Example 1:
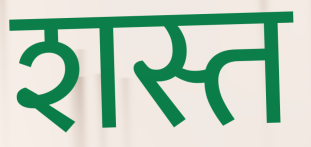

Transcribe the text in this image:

शस्त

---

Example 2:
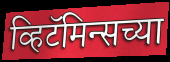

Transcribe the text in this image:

व्हिटॅमिन्सच्या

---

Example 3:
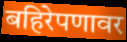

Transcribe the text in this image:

बहिरेपणावर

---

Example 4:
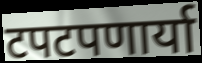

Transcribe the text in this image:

टपटपणार्या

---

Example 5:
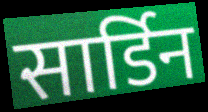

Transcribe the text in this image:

सार्डिन